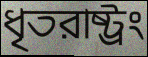
ধৃতরাষ্ট্রং